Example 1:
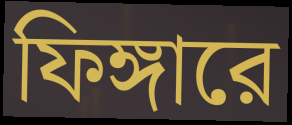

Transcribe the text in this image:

ফিঙ্গারে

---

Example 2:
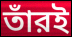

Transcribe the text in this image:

তাঁরই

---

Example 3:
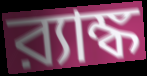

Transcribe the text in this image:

র‍্যাঙ্ক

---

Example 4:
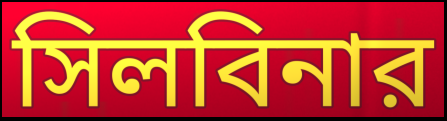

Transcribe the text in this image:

সিলবিনার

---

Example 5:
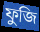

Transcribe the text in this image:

ফুজি